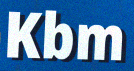
Kbm